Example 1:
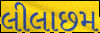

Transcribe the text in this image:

લીલાછમ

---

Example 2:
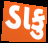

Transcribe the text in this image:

ડાકુ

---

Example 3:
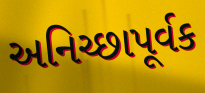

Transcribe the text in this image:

અનિચ્છાપૂર્વક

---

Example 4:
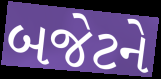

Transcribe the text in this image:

બજેટને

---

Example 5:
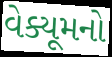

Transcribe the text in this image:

વેક્યૂમનો